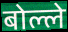
बोल्ले